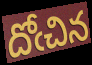
దోఁచిన